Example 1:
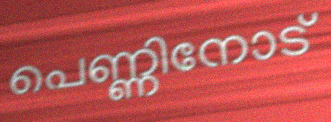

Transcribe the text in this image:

പെണ്ണിനോട്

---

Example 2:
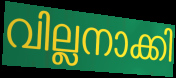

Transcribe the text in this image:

വില്ലനാക്കി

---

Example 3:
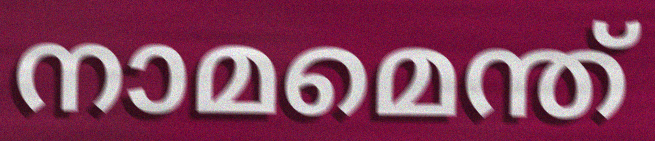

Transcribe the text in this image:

നാമമെന്ത്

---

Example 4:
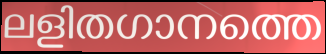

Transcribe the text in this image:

ലളിതഗാനത്തെ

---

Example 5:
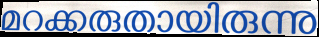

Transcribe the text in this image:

മറക്കരുതായിരുന്നു